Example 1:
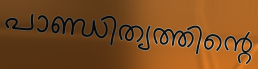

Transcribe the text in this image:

പാണ്ഡിത്യത്തിന്റെ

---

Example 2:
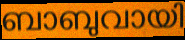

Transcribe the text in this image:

ബാബുവായി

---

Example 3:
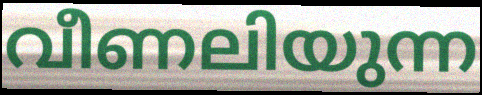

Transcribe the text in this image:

വീണലിയുന്ന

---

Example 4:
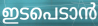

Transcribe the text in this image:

ഇടപെടാൻ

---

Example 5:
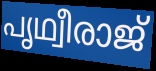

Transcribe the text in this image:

പൃഥ്വീരാജ്